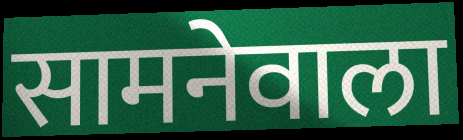
सामनेवाला